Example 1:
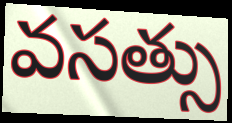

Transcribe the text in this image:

వసత్సు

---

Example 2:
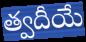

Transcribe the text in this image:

త్వదీయే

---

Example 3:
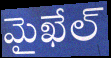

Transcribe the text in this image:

మైఖేల్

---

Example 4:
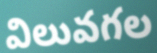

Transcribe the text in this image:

విలువగల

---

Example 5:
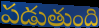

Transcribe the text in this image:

పడుతుంది